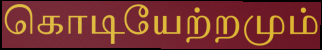
கொடியேற்றமும்